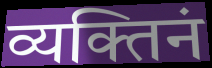
व्यक्तिनं